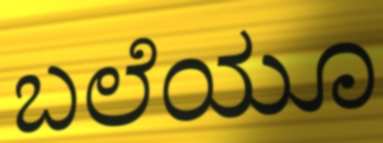
ಬಲೆಯೂ